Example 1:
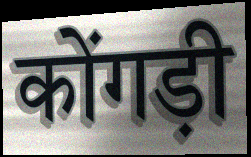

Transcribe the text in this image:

कोंगड़ी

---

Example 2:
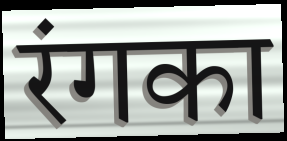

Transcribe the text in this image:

रंगका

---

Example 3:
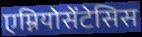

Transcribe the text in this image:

एम्नियोसेंटेसिस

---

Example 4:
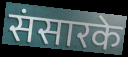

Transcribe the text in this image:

संसारके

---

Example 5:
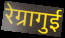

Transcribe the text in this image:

रेग्रागुई